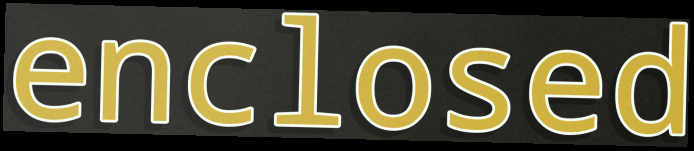
enclosed